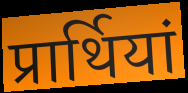
प्रार्थियां